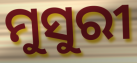
ମୁସୁରୀ